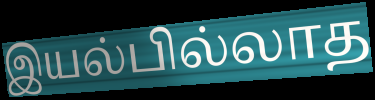
இயல்பில்லாத